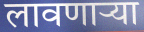
लावणाऱ्या